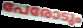
പേരോടും